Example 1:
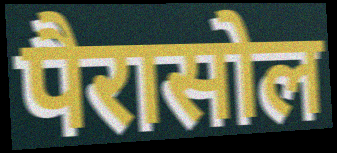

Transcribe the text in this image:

पैरासोल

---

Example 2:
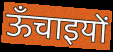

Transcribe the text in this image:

ऊँचाइयों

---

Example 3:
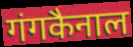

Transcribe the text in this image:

गंगकैनाल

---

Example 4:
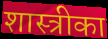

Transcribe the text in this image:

शास्त्रीका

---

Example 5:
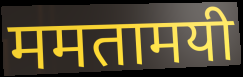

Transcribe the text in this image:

ममतामयी